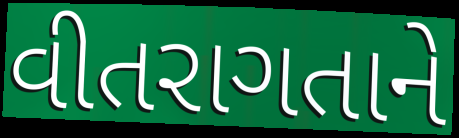
વીતરાગતાને